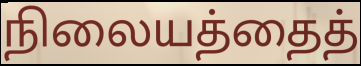
நிலையத்தைத்